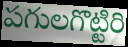
పగులగొట్టిరి